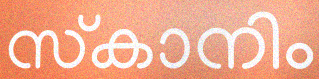
സ്‌കാനിം